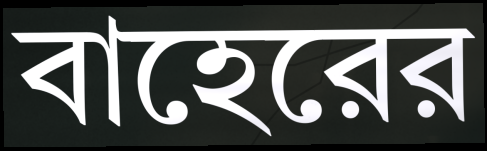
বাহেরের